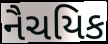
નૈચયિક